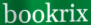
bookrix